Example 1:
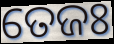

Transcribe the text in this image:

ତେଜଃ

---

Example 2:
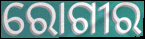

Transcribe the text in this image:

ରୋଗୀର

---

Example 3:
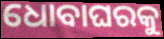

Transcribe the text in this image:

ଧୋବାଘରକୁ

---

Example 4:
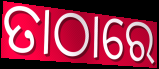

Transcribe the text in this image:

ତାଠାରେ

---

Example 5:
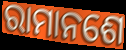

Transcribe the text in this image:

ରାମାନଶେ